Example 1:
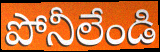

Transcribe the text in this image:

పోనీలేండి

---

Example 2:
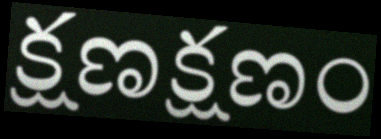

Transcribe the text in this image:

క్షణక్షణం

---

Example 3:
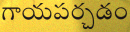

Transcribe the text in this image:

గాయపర్చడం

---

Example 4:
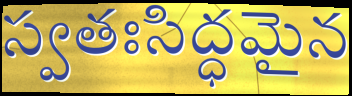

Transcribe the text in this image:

స్వతఃసిద్ధమైన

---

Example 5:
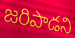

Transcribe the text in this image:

జరిపాడని